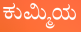
ಕುಮ್ಮಿಯ